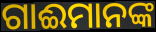
ଗାଈମାନଙ୍କ